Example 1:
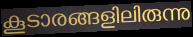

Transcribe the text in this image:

കൂടാരങ്ങളിലിരുന്നു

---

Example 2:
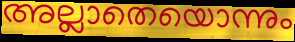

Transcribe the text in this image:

അല്ലാതെയൊന്നും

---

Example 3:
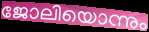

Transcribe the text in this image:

ജോലിയൊന്നും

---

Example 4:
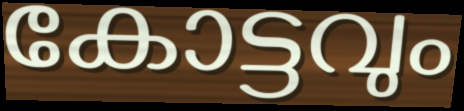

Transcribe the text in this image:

കോട്ടവും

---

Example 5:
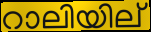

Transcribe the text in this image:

റാലിയില്